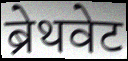
ब्रेथवेट